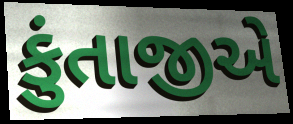
કુંતાજીએ